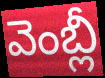
వెంబ్లీ